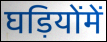
घड़ियोंमें